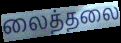
லைத்தலை